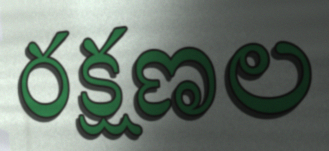
రక్షణల